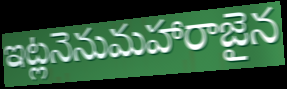
ఇట్లనెనుమహారాజైన